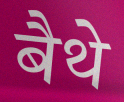
बैथे